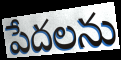
పేదలను